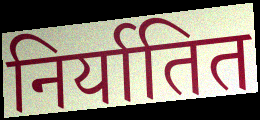
निर्यातित